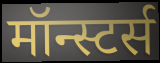
मॉन्स्टर्स